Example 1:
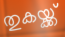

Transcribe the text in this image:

തുകയ്ക്ക്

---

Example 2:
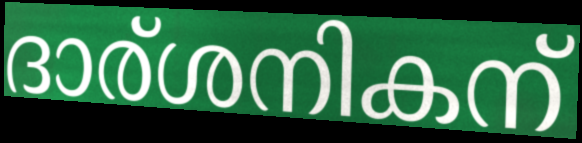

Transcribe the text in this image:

ദാര്ശനികന്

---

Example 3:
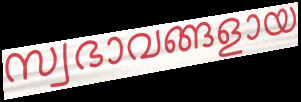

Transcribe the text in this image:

സ്വഭാവങ്ങളായ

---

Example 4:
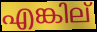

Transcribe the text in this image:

എങ്കില്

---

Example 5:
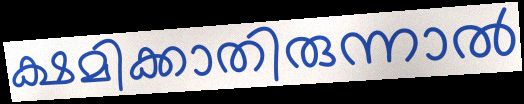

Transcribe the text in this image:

ക്ഷമിക്കാതിരുന്നാൽ